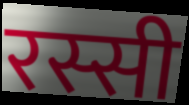
रस्‍सी